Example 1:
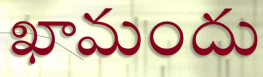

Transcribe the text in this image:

ఖామందు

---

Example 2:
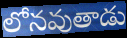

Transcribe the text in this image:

లోనవుతాడు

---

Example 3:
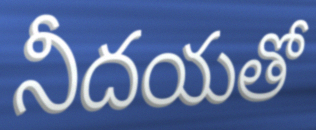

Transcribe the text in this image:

నీదయతో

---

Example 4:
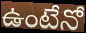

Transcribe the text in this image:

ఉంటేనో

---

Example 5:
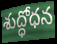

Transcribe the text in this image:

శుద్ధోధన